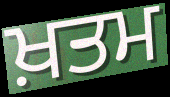
ਖ਼ਤਮ